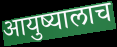
आयुष्यालाच